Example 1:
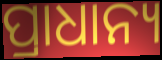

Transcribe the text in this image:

ପ୍ରାଧାନ୍ୟ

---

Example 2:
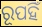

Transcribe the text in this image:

ରୂପହିଁ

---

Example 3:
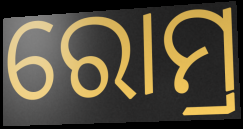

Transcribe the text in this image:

ରୋମ୍ର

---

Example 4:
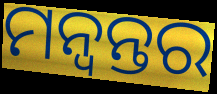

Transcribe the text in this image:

ମନ୍ୱନ୍ତର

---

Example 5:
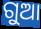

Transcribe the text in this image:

ଗୁଆ